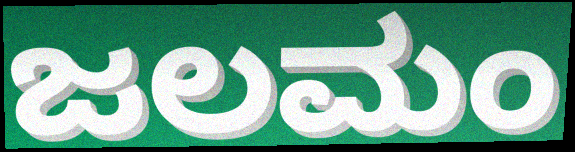
ಜಲಮಂ